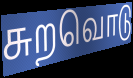
சுறவொடு